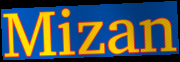
Mizan